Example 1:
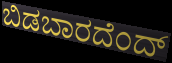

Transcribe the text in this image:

ಬಿಡಬಾರದೆಂದ್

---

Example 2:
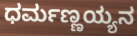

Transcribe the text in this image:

ಧರ್ಮಣ್ಣಯ್ಯನ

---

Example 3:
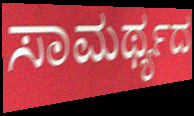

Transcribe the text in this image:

ಸಾಮರ್ಥ್ಯದ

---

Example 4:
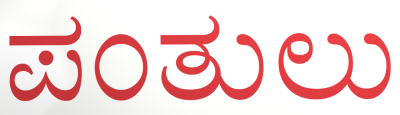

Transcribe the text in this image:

ಪಂತುಲು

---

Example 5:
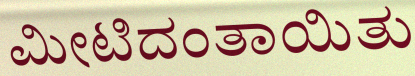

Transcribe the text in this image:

ಮೀಟಿದಂತಾಯಿತು